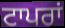
ਟਾਪਰਾਂ